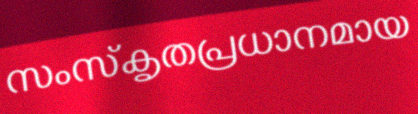
സംസ്‌കൃതപ്രധാനമായ